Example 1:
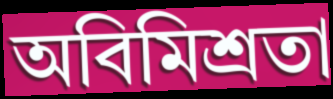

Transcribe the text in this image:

অবিমিশ্রতা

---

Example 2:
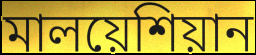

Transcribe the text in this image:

মালয়েশিয়ান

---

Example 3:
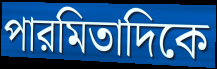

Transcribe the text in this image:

পারমিতাদিকে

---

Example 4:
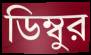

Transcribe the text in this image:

ডিম্বুর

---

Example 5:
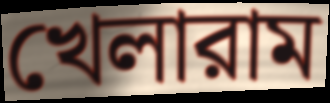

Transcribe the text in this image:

খেলারাম